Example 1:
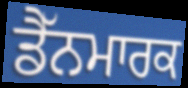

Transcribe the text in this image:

ਡੈੱਨਮਾਰਕ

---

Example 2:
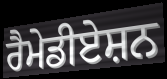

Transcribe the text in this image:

ਰੈਮੇਡੀਏਸ਼ਨ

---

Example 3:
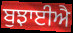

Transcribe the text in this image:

ਬੁਝਾਈਐ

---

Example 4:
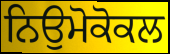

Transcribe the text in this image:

ਨਿਉਮੋਕੋਕਲ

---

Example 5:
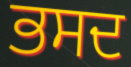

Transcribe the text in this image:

ਭਸਦ